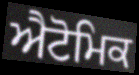
ਐਟੋਮਿਕ